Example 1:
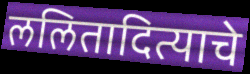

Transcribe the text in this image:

ललितादित्याचे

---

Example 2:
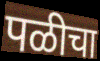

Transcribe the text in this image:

पळीचा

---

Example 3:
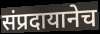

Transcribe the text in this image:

संप्रदायानेच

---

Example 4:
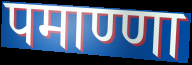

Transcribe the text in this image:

पमाण्णा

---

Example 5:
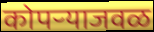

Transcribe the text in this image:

कोपऱ्याजवळ